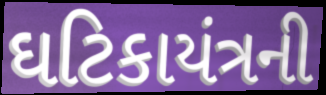
ઘટિકાયંત્રની